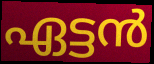
ഏട്ടൻ